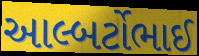
આલ્બર્ટોભાઈ